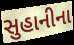
સુહાનીના